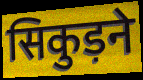
सिकुड़ने